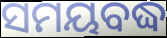
ସମୟବଦ୍ଧ